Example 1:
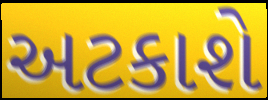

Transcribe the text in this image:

અટકાશે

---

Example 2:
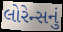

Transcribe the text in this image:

લોરેન્સનું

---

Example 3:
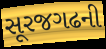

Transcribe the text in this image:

સૂરજગઢની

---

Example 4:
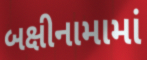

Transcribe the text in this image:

બક્ષીનામામાં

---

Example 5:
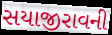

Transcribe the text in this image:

સયાજીરાવની